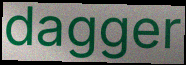
dagger